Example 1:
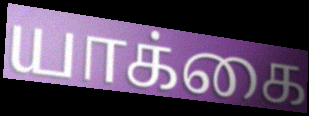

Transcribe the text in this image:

யாக்கை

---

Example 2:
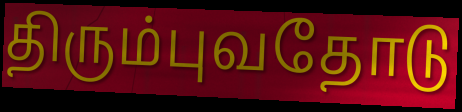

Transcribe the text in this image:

திரும்புவதோடு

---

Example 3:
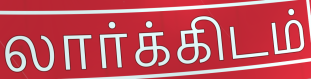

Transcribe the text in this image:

லார்க்கிடம்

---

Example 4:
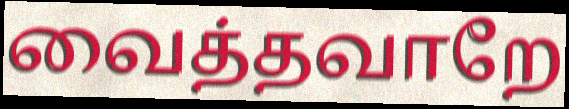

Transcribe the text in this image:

வைத்தவாறே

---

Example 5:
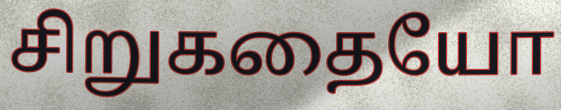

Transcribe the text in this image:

சிறுகதையோ